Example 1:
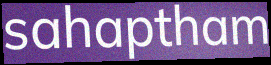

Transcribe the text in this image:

sahaptham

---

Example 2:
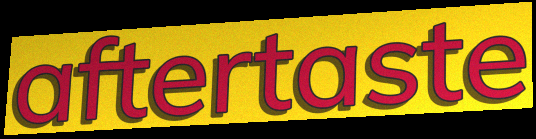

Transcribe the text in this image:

aftertaste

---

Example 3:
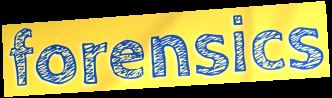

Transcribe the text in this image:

forensics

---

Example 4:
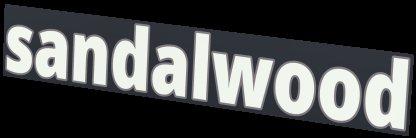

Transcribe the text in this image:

sandalwood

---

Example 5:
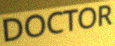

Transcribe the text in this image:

DOCTOR